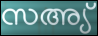
സഅ്യ്